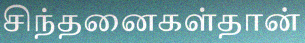
சிந்தனைகள்தான்